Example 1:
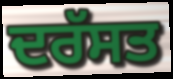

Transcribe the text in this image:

ਦਰੱਸਤ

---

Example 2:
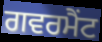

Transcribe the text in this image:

ਗਵਰਮੈਂਟ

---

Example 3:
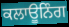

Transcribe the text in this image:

ਕਲਾਊਨਿੰਗ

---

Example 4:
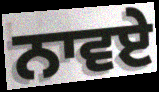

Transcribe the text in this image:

ਨਾਵਏ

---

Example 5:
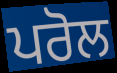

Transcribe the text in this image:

ਪਰੋਲ